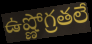
ఉష్ణోగ్రతలే